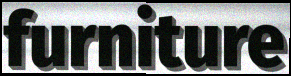
furniture